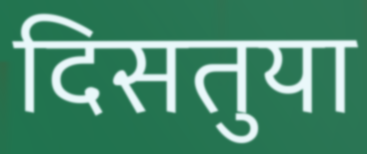
दिसतुया